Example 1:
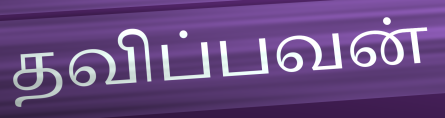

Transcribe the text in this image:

தவிப்பவன்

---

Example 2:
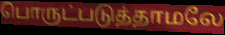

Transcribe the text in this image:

பொருட்படுத்தாமலே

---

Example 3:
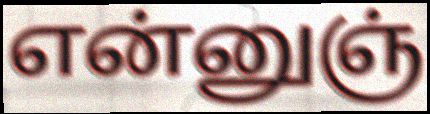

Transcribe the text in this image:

என்னுஞ்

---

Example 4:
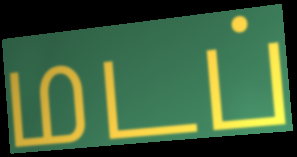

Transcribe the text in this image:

மடப்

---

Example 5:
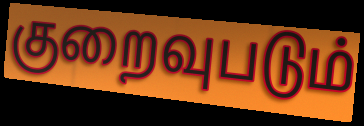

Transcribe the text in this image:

குறைவுபடும்